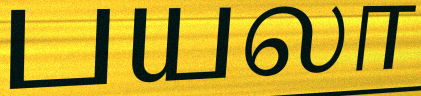
பயலா